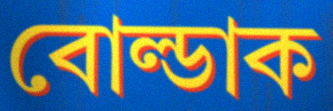
বোল্ডাক